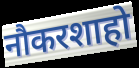
नौकरशाहो